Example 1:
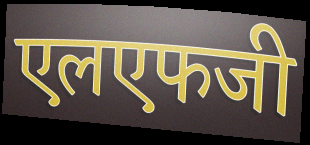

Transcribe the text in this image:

एलएफजी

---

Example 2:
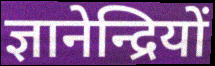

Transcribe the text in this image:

ज्ञानेन्द्रियों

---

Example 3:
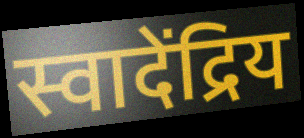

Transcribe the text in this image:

स्वादेंद्रिय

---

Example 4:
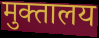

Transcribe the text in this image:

मुक्तालय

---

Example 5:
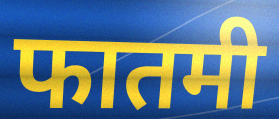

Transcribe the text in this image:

फातमी